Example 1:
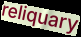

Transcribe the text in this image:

reliquary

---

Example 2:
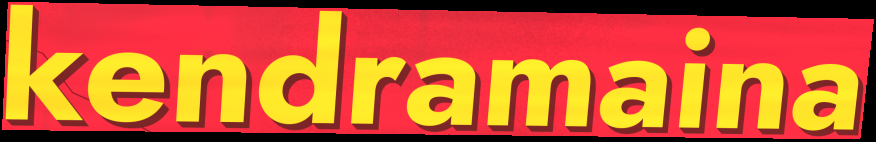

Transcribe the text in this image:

kendramaina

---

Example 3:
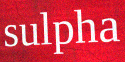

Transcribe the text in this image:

sulpha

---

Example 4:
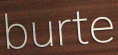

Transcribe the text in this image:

burte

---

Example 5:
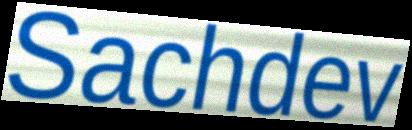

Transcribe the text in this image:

Sachdev